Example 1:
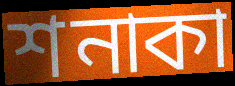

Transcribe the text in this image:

শনাকা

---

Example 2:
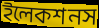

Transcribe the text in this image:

ইলেকশনস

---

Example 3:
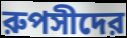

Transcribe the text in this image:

রুপসীদের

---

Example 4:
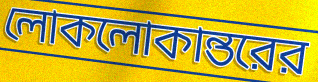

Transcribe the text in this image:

লোকলোকান্তরের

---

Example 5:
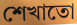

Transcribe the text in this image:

শেখাতো